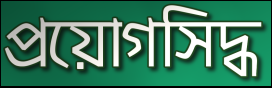
প্রয়োগসিদ্ধ